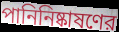
পানিনিষ্কাষণের